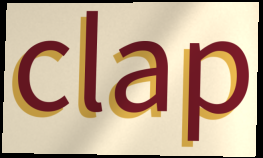
clap